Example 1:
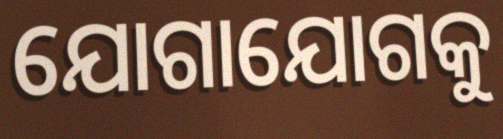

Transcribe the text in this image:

ଯୋଗାଯୋଗକୁ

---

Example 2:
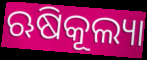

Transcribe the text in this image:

ଋଷିକୂଲ୍ୟା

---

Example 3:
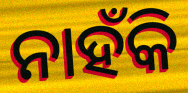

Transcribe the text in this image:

ନାହଁକି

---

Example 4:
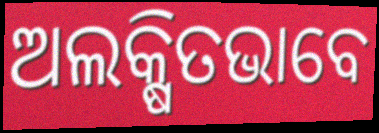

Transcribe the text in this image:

ଅଲକ୍ଷିତଭାବେ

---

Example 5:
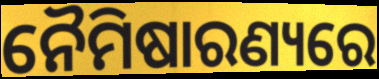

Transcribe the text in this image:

ନୈମିଷାରଣ୍ୟରେ